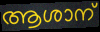
ആശാന്